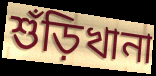
শুঁড়িখানা